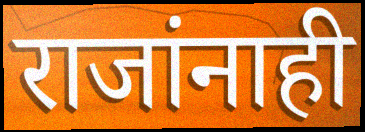
राजांनाही